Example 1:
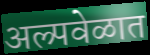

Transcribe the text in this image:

अल्पवेळात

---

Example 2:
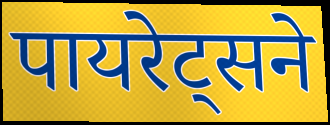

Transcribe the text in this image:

पायरेट्सने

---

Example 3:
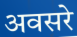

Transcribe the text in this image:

अवसरे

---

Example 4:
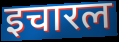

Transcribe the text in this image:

इचारल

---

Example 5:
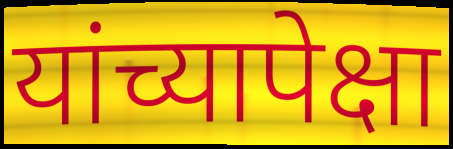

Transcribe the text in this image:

यांच्यापेक्षा